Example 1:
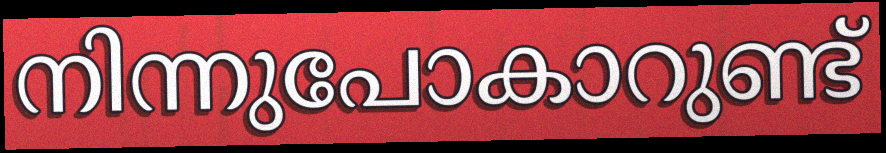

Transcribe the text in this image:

നിന്നുപോകാറുണ്ട്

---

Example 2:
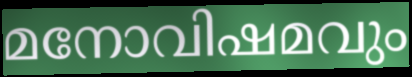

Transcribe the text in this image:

മനോവിഷമവും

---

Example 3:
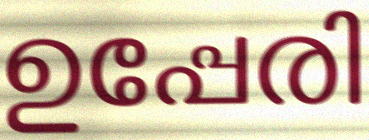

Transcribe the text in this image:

ഉപ്പേരി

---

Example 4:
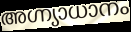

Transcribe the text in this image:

അഗ്ന്യാധാനം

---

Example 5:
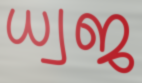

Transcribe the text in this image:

ധ്വജ